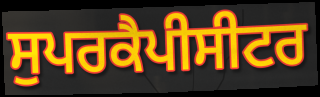
ਸੁਪਰਕੈਪੀਸੀਟਰ